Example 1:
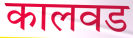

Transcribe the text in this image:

कालवड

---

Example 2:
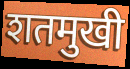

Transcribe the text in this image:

शतमुखी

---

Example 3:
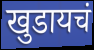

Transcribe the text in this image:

खुडायचं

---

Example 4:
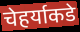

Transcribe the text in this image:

चेहर्याकडे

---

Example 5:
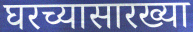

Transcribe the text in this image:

घरच्यासारख्या